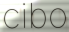
cibo